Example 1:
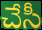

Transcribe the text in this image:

చేసీ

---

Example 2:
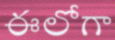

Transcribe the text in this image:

ఈలోగా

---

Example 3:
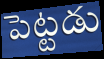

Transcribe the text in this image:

పెట్టడు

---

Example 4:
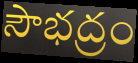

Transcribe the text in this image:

సౌభద్రం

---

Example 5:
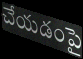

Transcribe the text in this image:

చేయడంపై